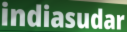
indiasudar